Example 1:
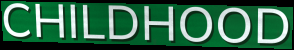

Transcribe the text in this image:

CHILDHOOD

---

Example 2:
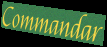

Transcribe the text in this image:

Commandar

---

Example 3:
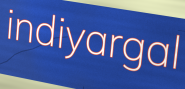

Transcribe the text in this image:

indiyargal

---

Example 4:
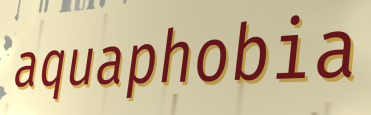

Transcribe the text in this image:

aquaphobia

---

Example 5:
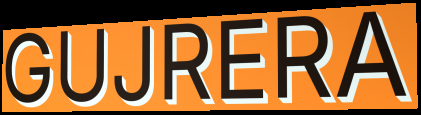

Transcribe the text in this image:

GUJRERA